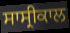
ਸਾਸ੍ਰੀਕਾਲ